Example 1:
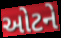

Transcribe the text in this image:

ઓટને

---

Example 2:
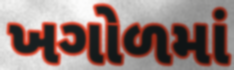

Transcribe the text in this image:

ખગોળમાં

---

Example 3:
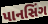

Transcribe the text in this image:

પાનસિંગ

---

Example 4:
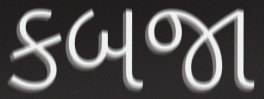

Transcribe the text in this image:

કબજા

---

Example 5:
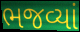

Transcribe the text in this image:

ભજવ્યાં